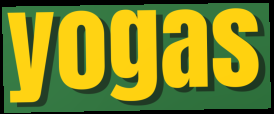
yogas